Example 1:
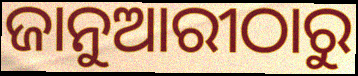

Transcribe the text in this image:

ଜାନୁଆରୀଠାରୁ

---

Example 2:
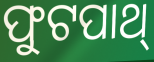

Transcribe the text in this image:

ଫୁଟପାଥ୍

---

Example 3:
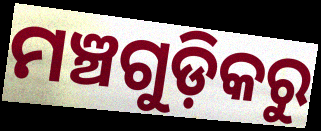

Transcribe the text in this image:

ମଞ୍ଚଗୁଡ଼ିକରୁ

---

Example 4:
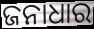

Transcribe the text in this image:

ଜନାଧାର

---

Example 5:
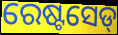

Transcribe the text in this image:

ରେଷ୍ଟସେଡ୍